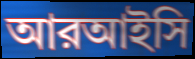
আরআইসি